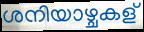
ശനിയാഴ്ചകള്